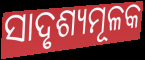
ସାଦୃଶ୍ୟମୂଳକ